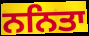
ਨਨਿਤਾ